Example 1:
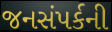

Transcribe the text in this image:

જનસંપર્કની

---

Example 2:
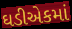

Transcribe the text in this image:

ઘડીએકમાં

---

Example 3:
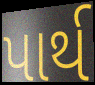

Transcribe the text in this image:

પાર્થ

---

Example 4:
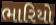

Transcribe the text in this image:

ભારિયો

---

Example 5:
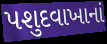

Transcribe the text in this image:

પશુદવાખાનાં